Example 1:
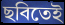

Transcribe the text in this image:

ছবিতেই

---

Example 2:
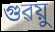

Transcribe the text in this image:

গুৱয়ু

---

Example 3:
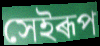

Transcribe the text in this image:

সেইৰূপ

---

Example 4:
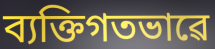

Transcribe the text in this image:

ব্যক্তিগতভাৱে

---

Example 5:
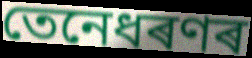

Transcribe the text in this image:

তেনেধৰণৰ